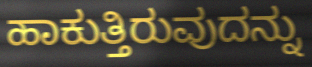
ಹಾಕುತ್ತಿರುವುದನ್ನು